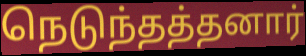
நெடுந்தத்தனார்